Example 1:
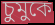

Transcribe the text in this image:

চুমুকে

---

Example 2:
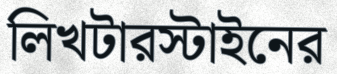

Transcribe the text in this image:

লিখটারস্টাইনের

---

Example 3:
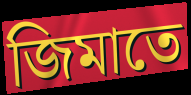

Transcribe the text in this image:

জিমাতে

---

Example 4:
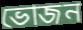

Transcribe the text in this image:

ভোজন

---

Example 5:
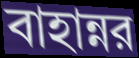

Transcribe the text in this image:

বাহান্নর